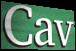
Cav